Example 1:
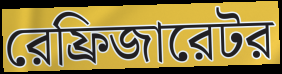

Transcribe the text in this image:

রেফ্রিজারেটর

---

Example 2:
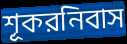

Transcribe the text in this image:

শূকরনিবাস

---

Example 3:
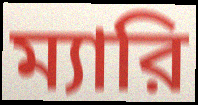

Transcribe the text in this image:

ম্যারি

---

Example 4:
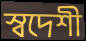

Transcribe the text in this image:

স্বদেশী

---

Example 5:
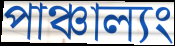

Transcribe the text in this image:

পাঞ্চাল্যং